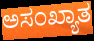
ಅಸಂಖ್ಯಾತ